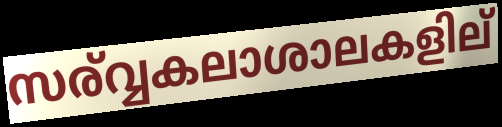
സര്വ്വകലാശാലകളില്